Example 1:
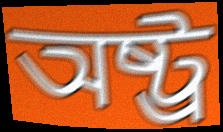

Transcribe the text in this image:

অষ্ট্ৰ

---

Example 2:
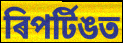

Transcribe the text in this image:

ৰিপৰ্টিঙত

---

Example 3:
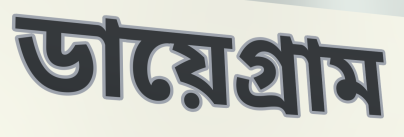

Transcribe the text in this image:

ডায়েগ্ৰাম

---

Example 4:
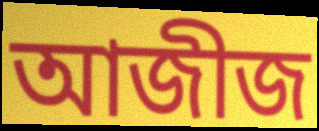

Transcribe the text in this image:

আজীজ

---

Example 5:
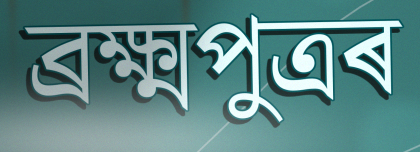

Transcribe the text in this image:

ব্ৰক্ষ্মপুত্ৰৰ